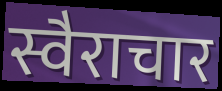
स्वैराचार